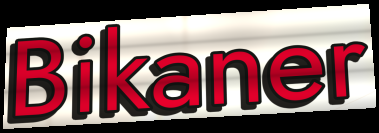
Bikaner